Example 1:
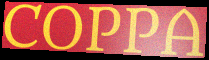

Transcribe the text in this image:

COPPA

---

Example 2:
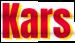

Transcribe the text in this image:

Kars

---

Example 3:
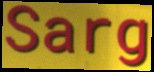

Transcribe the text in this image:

Sarg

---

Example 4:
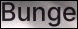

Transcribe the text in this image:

Bunge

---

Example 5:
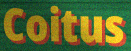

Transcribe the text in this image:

Coitus